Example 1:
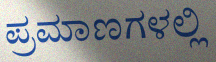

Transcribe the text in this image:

ಪ್ರಮಾಣಗಳಲ್ಲಿ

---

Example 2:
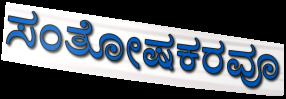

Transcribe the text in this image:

ಸಂತೋಷಕರವೂ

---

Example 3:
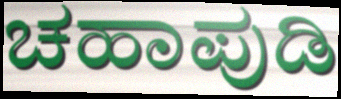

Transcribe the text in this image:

ಚಹಾಪುಡಿ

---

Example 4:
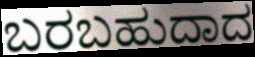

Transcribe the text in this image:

ಬರಬಹುದಾದ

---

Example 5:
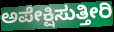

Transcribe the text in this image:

ಅಪೇಕ್ಷಿಸುತ್ತೀರಿ